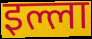
इल्ला